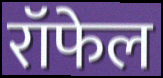
रॉफेल